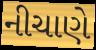
નીચાણે